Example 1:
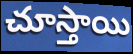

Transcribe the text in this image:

చూస్తాయి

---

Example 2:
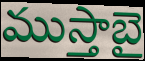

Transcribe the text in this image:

ముస్తాబై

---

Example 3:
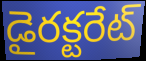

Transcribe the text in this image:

డైరక్టరేట్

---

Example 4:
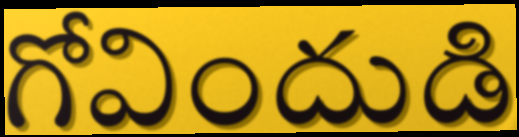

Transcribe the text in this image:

గోవిందుడి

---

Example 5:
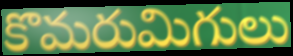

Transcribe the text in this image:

కొమరుమిగులు